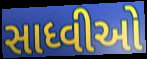
સાધ્વીઓ